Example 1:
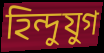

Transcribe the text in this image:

হিন্দুযুগ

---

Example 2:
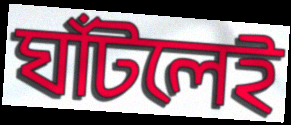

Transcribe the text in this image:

ঘাঁটলেই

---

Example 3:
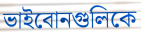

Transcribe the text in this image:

ভাইবোনগুলিকে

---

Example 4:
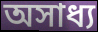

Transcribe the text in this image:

অসাধ্য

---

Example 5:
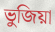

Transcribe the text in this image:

ভুজিয়া